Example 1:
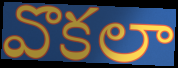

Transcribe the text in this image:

వొకలా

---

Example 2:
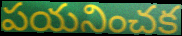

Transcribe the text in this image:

పయనించక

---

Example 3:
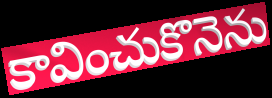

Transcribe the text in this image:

కావించుకొనెను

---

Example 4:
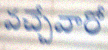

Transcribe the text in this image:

వచ్చేవారో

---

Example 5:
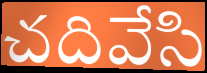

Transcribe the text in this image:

చదివేసి